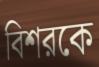
বিশরকে